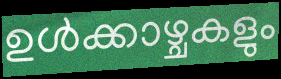
ഉൾക്കാഴ്ചകളും